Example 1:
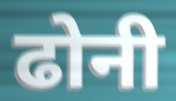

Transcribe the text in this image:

ढोनी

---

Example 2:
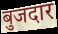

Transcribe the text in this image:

बुजदार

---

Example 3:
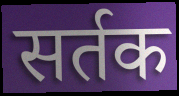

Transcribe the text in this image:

सर्तक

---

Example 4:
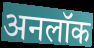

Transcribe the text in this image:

अनलॉक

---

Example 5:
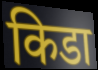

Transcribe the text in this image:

किडा